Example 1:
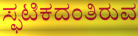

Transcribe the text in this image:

ಸ್ಫಟಿಕದಂತಿರುವ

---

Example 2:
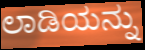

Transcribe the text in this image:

ಲಾಡಿಯನ್ನು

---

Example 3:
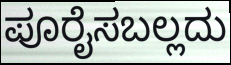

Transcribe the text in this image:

ಪೂರೈಸಬಲ್ಲದು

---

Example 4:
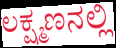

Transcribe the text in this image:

ಲಕ್ಷ್ಮಣನಲ್ಲಿ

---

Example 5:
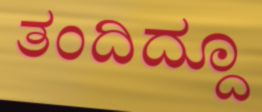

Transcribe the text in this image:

ತಂದಿದ್ದೂ